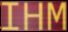
IHM